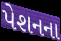
પેશનના